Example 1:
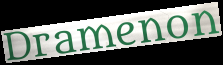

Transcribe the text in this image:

Dramenon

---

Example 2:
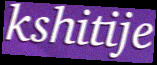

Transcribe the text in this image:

kshitije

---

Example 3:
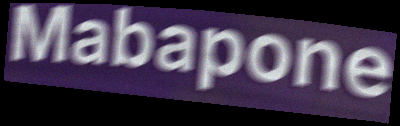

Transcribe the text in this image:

Mabapone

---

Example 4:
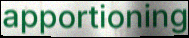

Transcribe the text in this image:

apportioning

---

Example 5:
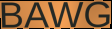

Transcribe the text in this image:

BAWG